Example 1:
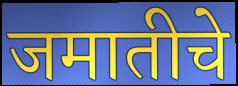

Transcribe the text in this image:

जमातीचे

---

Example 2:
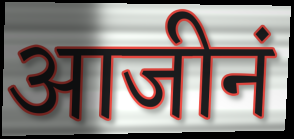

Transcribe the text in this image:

आजीनं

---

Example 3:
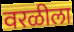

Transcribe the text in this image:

वरळीला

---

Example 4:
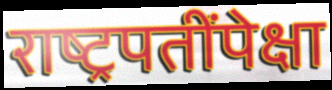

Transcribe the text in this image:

राष्ट्रपतींपेक्षा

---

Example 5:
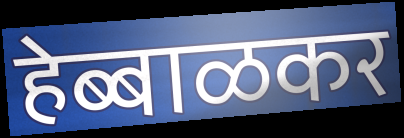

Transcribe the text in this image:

हेब्बाळकर